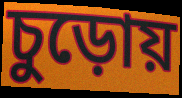
চুড়োয়